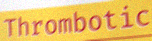
Thrombotic